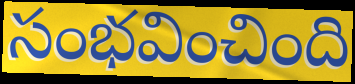
సంభవించింది